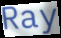
Ray